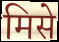
मिसे